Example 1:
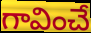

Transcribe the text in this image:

గావించే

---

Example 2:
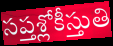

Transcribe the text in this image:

సప్తశ్లోకీస్తుతి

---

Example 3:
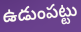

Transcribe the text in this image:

ఉడుంపట్టు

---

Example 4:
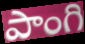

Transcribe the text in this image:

పాంగి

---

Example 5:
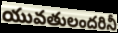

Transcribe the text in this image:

యువతులందరినీ